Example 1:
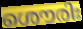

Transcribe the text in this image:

ശൌരിഃ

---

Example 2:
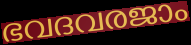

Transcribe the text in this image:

ഭവദവരജാം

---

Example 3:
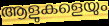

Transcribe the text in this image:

ആളുകളെയും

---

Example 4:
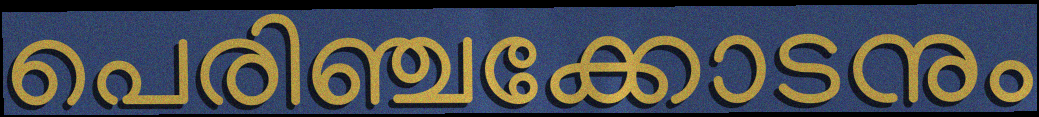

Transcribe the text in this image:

പെരിഞ്ചക്കോടനും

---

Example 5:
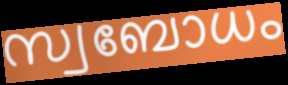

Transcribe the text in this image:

സ്വബോധം